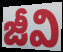
జీవి